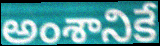
అంశానికే